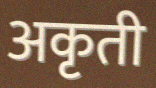
अकृती